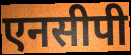
एनसीपी